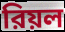
রিয়ল